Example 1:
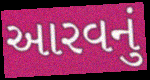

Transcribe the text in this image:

આરવનું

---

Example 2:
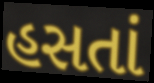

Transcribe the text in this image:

હસતાં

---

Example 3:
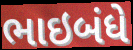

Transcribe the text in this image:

ભાઇબંધે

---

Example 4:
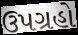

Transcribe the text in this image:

ઉપગ્રહો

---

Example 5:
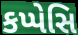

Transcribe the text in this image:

કપ્પેસિ